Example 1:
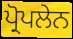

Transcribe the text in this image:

ਪ੍ਰੋਪਲੇਨ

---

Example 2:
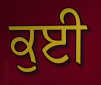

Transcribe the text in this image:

ਕੁਈ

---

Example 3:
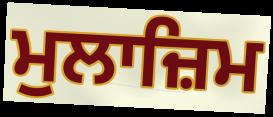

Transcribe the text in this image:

ਮੁਲਾਜ਼ਿਮ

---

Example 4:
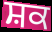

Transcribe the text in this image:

ਸ਼ਕ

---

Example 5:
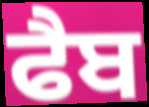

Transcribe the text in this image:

ਫੈਬ